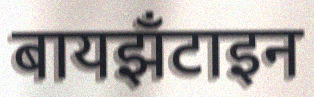
बायझँटाइन